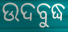
ଉଦବୁଦ୍ଧ